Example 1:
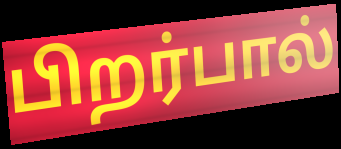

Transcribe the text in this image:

பிறர்பால்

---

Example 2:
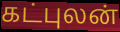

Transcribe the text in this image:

கட்புலன்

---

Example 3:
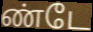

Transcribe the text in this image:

ண்டே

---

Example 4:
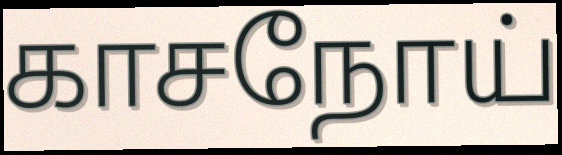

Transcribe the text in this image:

காசநோய்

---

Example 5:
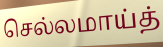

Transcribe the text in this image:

செல்லமாய்த்